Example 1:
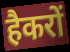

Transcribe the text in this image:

हैकरों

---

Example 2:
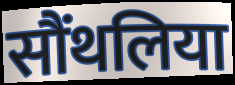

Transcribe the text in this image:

सौंथलिया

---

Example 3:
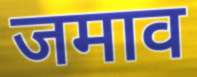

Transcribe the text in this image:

जमाव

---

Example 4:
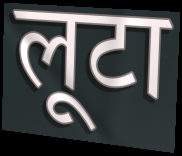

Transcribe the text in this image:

लूटा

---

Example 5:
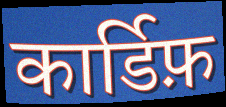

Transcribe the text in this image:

कार्डिफ़